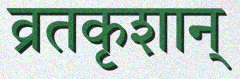
व्रतकृशान्